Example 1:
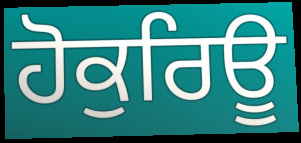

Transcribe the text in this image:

ਹੋਕੁਰਿਊ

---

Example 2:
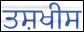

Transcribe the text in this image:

ਤਸ਼ਖੀਸ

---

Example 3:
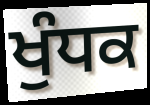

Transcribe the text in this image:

ਖੁੰਧਕ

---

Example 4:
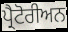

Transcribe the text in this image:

ਪ੍ਰੈਟੋਰੀਅਨ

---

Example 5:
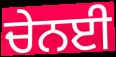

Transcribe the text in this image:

ਚੇਨਈ